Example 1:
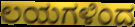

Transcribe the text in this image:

ಲಯಗಳಿಂದ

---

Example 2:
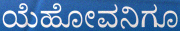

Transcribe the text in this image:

ಯೆಹೋವನಿಗೂ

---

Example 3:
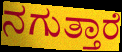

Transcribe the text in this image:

ನಗುತ್ತಾರೆ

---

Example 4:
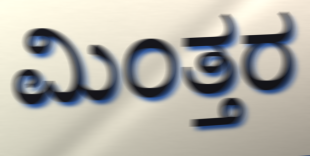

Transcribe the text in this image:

ಮಿಂತ್ತರ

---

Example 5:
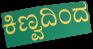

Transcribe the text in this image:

ಕಿಣ್ವದಿಂದ